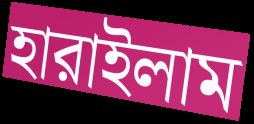
হারাইলাম